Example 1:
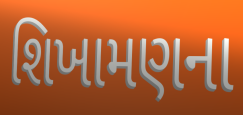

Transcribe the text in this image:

શિખામણના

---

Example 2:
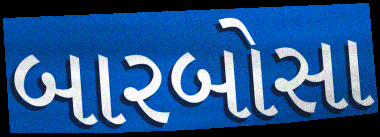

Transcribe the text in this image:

બારબોસા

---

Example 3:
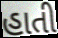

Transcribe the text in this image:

હાતી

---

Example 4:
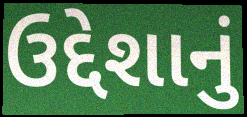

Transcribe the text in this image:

ઉદ્દેશાનું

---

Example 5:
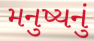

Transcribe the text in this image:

મનુષ્યનું